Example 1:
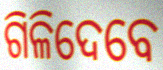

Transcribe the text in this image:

ଗିଳିଦେବେ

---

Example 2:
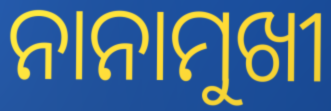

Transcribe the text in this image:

ନାନାମୁଖୀ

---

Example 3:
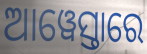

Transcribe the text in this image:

ଆୱେସ୍ତାରେ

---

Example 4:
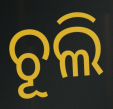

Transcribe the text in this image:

ଚୂଲି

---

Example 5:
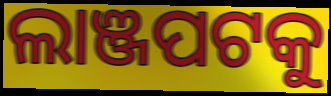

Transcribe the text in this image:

ଲାଞ୍ଜପଟକୁ